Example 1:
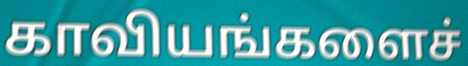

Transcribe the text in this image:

காவியங்களைச்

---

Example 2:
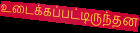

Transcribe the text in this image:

உடைக்கப்பட்டிருந்தன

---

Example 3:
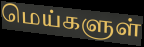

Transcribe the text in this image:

மெய்களுள்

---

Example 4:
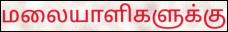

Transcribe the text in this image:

மலையாளிகளுக்கு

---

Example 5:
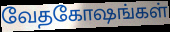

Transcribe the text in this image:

வேதகோஷங்கள்